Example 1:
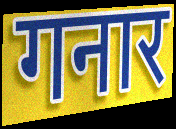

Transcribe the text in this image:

गनार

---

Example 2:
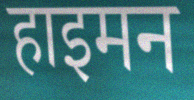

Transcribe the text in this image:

हाइमन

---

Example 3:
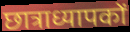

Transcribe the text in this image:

छात्राध्यापकों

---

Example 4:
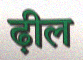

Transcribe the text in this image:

ढ़ील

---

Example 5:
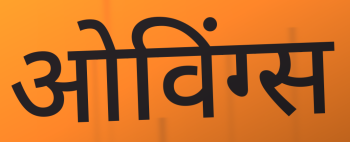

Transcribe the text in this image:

ओविंग्स